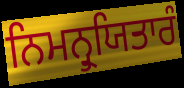
ਨਿਮਨ੍ਤ੍ਰਯਿਤਾਰੰ